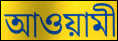
আওয়ামী